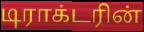
டிராக்டரின்